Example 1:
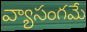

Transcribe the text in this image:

వ్యాసంగమే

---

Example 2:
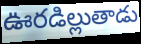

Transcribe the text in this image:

ఊరడిల్లుతాడు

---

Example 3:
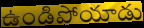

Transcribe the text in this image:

ఉండిపోయాడు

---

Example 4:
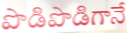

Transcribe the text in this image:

పొడిపొడిగానే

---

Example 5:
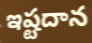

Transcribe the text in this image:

ఇష్టదాన